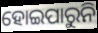
ହୋଇପାରୁନି